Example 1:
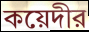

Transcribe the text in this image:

কয়েদীর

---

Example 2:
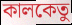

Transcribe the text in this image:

কালকেতু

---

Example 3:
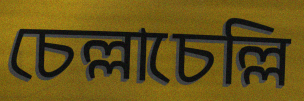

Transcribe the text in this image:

চেল্লাচেল্লি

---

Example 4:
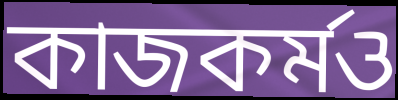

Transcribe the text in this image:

কাজকর্মও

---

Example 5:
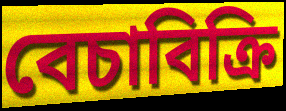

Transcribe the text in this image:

বেচাবিক্রি